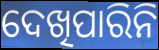
ଦେଖିପାରିନି